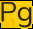
Pg